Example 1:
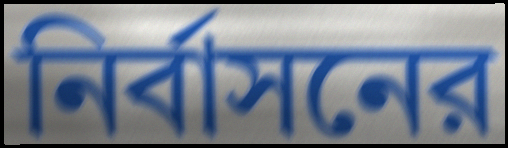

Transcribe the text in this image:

নির্বাসনের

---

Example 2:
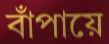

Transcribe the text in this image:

বাঁপায়ে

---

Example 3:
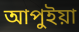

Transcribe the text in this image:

আপুইয়া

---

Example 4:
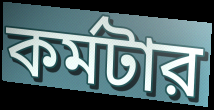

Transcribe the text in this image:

কর্মটার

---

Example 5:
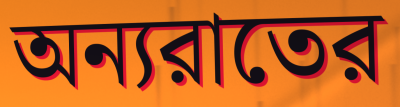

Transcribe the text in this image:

অন্যরাতের